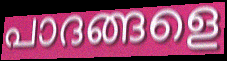
പാദങ്ങളെ